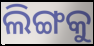
ଲିଙ୍ଗକୁ